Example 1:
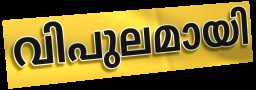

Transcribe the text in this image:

വിപുലമായി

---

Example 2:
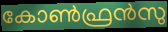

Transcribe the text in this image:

കോൺഫ്രൻസു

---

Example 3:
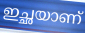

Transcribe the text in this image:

ഇച്ഛയാണ്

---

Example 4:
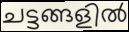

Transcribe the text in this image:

ചട്ടങ്ങളിൽ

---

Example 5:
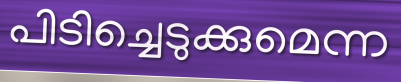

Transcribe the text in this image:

പിടിച്ചെടുക്കുമെന്ന